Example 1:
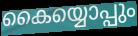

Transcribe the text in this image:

കൈയ്യൊപ്പും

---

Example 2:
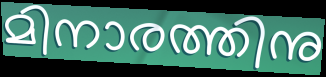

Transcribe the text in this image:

മിനാരത്തിനു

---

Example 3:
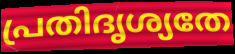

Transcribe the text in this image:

പ്രതിദൃശ്യതേ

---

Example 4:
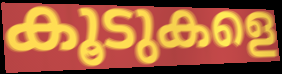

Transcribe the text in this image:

കൂടുകളെ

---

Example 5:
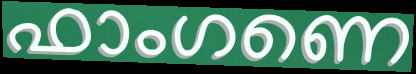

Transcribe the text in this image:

ഫാംഗണെ